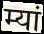
म्यां